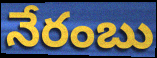
నేరంబు